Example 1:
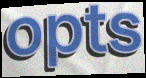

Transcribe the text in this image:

opts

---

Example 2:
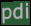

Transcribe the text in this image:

pdi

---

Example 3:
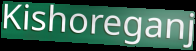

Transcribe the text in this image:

Kishoreganj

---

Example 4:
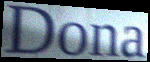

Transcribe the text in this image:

Dona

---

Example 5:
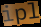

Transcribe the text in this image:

ipl